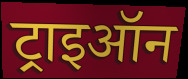
ट्राइऑन